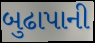
બુઢાપાની